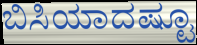
ಬಿಸಿಯಾದಷ್ಟೂ